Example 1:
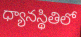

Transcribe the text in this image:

ధ్యానస్థితిలో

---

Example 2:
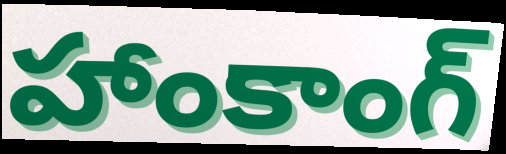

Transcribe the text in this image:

హాంకాంగ్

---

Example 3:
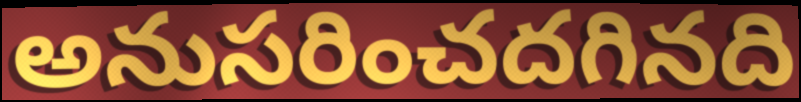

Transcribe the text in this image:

అనుసరించదగినది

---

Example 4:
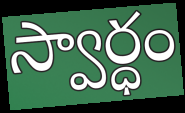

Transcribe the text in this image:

స్వార్ధం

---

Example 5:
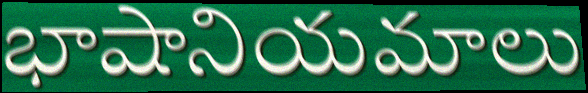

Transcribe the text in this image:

భాషానియమాలు